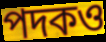
পদকও